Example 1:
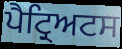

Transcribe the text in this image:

ਪੈਟ੍ਰਿਅਟਸ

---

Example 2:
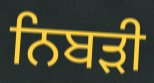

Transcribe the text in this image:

ਨਿਬੜੀ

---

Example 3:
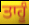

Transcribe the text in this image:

ਤਾਹੂੰ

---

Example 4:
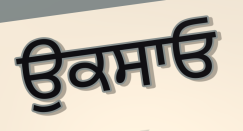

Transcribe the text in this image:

ਉਕਸਾਓ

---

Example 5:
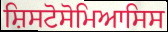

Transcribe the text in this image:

ਸ਼ਿਸਟੋਸੋਮਿਆਸਿਸ